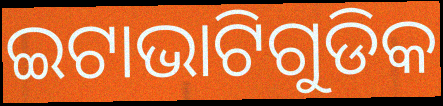
ଇଟାଭାଟିଗୁଡିକ